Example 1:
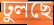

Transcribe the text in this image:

ঢুলছে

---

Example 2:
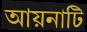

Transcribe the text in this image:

আয়নাটি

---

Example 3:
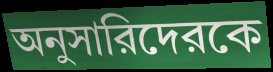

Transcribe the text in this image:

অনুসারিদেরকে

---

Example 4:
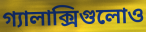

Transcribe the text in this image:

গ্যালাক্সিগুলোও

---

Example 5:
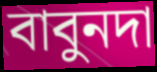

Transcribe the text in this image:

বাবুনদা